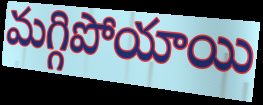
మగ్గిపోయాయి